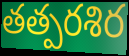
తత్పరశిర